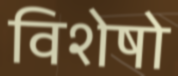
विशेषो